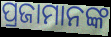
ପ୍ରଜାମାନଙ୍କ